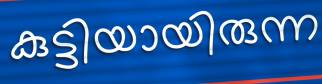
കുട്ടിയായിരുന്ന